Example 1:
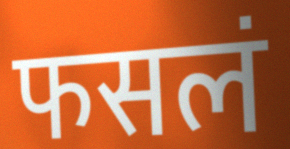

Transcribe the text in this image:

फसलं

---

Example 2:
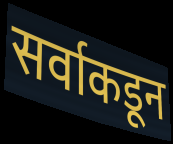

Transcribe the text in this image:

सर्वाकडून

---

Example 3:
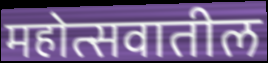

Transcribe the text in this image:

महोत्सवातील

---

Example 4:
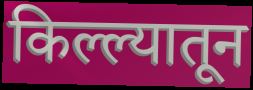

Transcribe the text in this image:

किल्ल्यातून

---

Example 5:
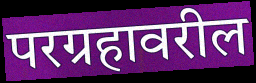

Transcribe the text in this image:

परग्रहावरील